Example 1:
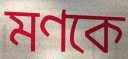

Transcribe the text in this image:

মণকে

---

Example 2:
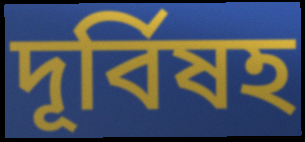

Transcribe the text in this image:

দূর্বিষহ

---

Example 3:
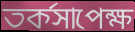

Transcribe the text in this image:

তর্কসাপেক্ষ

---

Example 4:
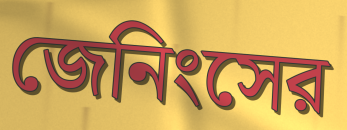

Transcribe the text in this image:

জেনিংসের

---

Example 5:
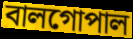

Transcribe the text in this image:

বালগোপাল